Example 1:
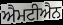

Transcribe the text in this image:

ਐਮਟੀਐਨ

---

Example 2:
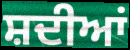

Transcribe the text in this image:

ਸ਼ਦੀਆਂ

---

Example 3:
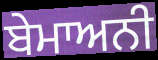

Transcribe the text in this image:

ਬੇਮਾਅਨੀ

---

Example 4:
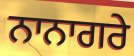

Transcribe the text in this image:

ਨਾਨਾਗਰੇ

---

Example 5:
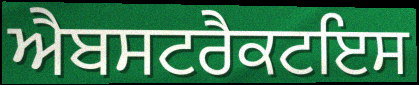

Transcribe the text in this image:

ਐਬਸਟਰੈਕਟਇਸ